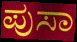
ಪುಸಾ